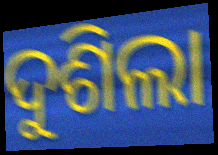
ଦୁଶିଲା